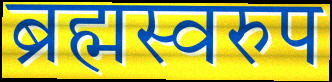
ब्रह्मस्वरुप